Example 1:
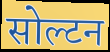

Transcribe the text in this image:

सोल्टन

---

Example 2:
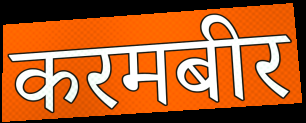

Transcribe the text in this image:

करमबीर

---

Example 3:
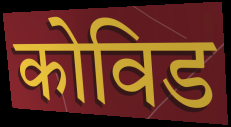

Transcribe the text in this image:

कोविड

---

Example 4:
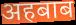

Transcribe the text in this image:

अहबाब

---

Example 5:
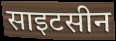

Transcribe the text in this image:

साइटसीन